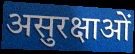
असुरक्षाओं